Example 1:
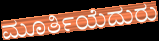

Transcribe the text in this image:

ಮೂರ್ತಿಯೆದುರು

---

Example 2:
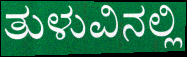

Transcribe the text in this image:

ತುಳುವಿನಲ್ಲಿ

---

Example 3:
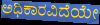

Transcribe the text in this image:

ಅಧಿಕಾರವಿದೆಯೇ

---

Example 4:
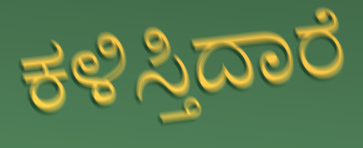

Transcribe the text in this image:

ಕಳಿಸ್ತಿದಾರೆ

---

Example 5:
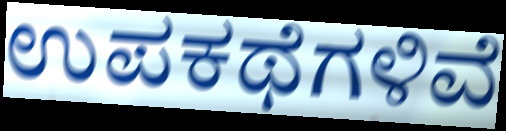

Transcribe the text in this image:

ಉಪಕಥೆಗಳಿವೆ